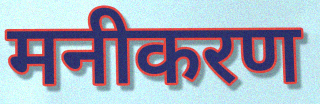
मनीकरण